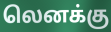
லெனக்கு